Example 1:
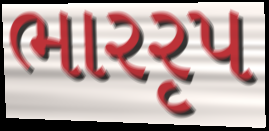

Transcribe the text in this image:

ભારરૃપ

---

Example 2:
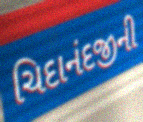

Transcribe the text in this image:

ચિદાનંદજીની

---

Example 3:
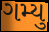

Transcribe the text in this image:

ગમ્યુ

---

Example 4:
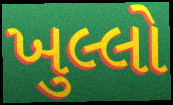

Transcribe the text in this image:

ખુલ્લો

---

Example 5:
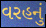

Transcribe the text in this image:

વરહનું